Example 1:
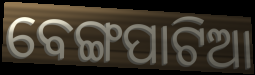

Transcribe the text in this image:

ବେଙ୍ଗପାଟିଆ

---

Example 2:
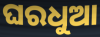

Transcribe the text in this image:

ଘରଧୁଆ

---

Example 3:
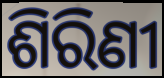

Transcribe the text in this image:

ଶିରିଣୀ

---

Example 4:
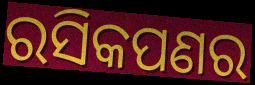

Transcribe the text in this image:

ରସିକପଣର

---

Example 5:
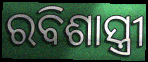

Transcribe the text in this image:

ରବିଶାସ୍ତ୍ରୀ